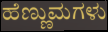
ಹೆಣ್ಣುಮಗಳು